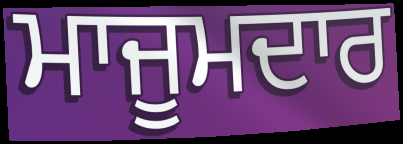
ਮਾਜੂਮਦਾਰ